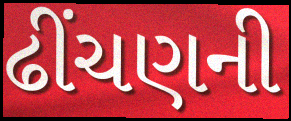
ઢીંચણની